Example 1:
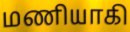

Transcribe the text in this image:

மணியாகி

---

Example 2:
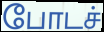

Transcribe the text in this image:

போடச்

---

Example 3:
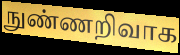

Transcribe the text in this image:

நுண்ணறிவாக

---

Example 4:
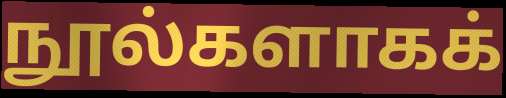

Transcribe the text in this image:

நூல்களாகக்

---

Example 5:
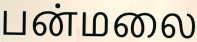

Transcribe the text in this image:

பன்மலை